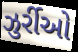
ઝુર્રીઓ